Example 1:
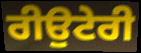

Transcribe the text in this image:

ਰੀਉਟੇਰੀ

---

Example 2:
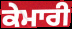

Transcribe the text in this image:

ਕੇਮਾਰੀ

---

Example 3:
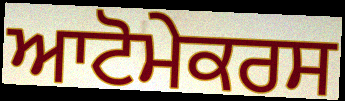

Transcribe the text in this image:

ਆਟੋਮੇਕਰਸ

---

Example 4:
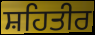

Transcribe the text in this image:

ਸ਼ਹਿਤੀਰ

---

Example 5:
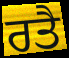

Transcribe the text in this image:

ਰਤੈ